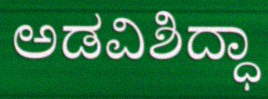
ಅಡವಿಶಿದ್ಧಾ